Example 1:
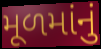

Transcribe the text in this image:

મૂળમાંનું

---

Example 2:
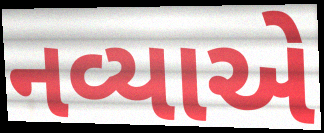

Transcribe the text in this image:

નવ્યાએ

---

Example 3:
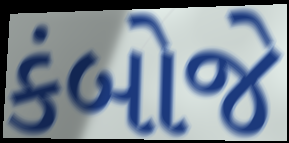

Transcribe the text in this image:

કંબોજે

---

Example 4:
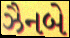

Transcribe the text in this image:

ઝૈનબે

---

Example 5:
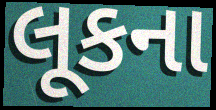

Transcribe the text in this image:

લૂકના